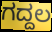
ಗದ್ದಲ